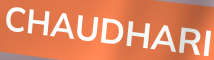
CHAUDHARI